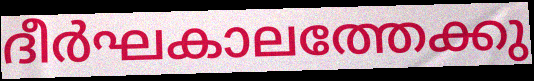
ദീർഘകാലത്തേക്കു